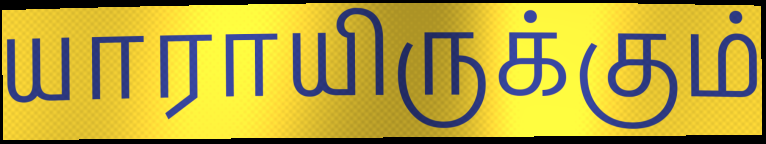
யாராயிருக்கும்